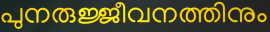
പുനരുജ്ജീവനത്തിനും